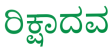
ರಿಕ್ಷಾದವ